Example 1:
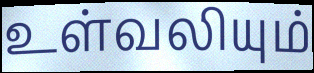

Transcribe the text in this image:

உள்வலியும்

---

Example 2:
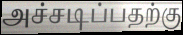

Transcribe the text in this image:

அச்சடிப்பதற்கு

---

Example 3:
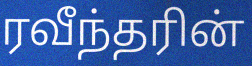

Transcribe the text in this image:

ரவீந்தரின்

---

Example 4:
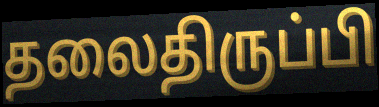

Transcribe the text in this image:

தலைதிருப்பி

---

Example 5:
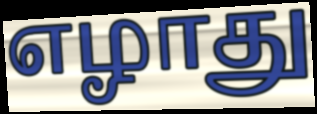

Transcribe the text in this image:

எழாது